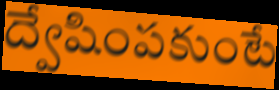
ద్వేషింపకుంటే